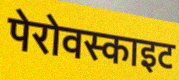
पेरोवस्काइट